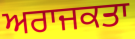
ਅਰਾਜਕਤਾ